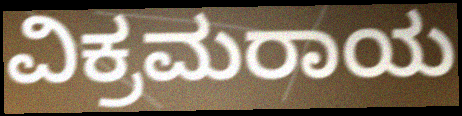
ವಿಕ್ರಮರಾಯ